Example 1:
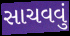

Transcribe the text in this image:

સાચવવું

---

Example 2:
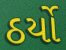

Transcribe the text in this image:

ઠર્યો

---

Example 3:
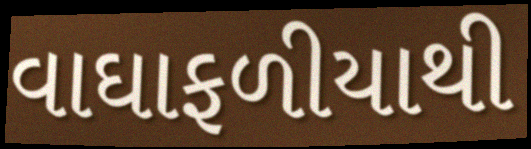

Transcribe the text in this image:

વાઘાફળીયાથી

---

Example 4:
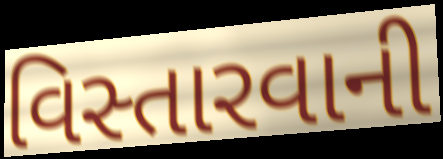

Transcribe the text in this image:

વિસ્તારવાની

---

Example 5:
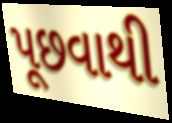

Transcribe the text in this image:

પૂછવાથી